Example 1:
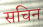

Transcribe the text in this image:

सचिन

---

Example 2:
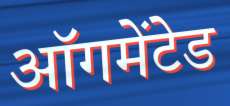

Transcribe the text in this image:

ऑगमेंटेड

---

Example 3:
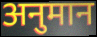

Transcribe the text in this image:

अनुमान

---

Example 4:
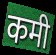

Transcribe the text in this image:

कमी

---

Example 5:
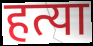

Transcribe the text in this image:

हत्या